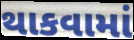
થાકવામાં